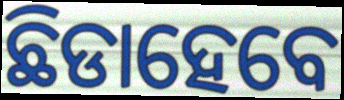
ଛିଡାହେବେ